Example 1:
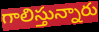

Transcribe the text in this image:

గాలిస్తున్నారు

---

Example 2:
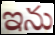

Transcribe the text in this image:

ఇను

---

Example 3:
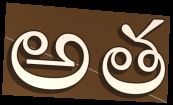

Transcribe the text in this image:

అత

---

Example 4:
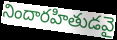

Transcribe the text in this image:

నిందారహితుడవై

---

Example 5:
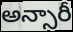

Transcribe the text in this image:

అన్సారీ